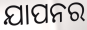
ଯାପନର